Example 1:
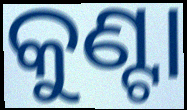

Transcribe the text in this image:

କୁଣ୍ଟା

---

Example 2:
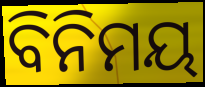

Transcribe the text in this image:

ବିନିମୟ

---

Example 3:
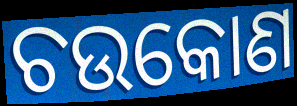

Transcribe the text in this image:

ଚଉକୋଣ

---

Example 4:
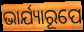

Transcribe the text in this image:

ଭାର୍ଯ୍ୟାରୂପେ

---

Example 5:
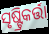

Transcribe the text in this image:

ସୃଷ୍ଟ୍ରିକର୍ତ୍ତା